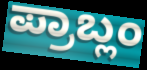
ಪ್ರಾಬ್ಲಂ